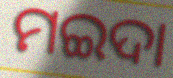
ମଇଦା